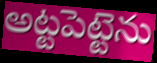
అట్టపెట్టెను